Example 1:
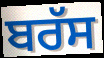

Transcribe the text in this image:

ਬਰੱਸ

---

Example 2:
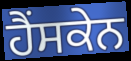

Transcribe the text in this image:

ਹੈਂਸਕੇਨ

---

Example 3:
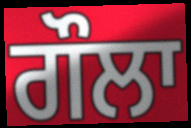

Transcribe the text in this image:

ਗੌਲਾ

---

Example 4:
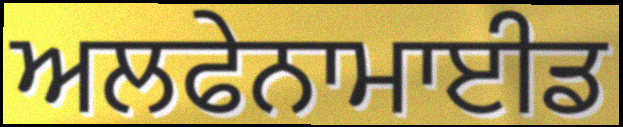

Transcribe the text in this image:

ਅਲਫੇਨਾਮਾਈਡ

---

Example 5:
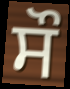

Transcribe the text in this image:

ਸੌ